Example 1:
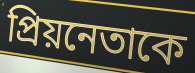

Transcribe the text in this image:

প্রিয়নেতাকে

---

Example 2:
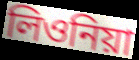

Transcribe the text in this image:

লিওনিয়া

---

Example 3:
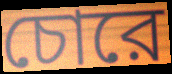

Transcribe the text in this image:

চোরে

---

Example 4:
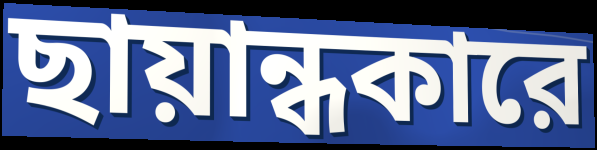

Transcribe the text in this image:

ছায়ান্ধকারে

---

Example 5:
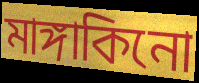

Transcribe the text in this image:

মাঙ্গাকিনো